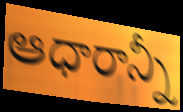
ఆధారాన్నీ